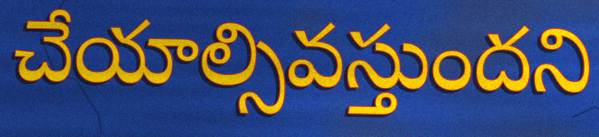
చేయాల్సివస్తుందని